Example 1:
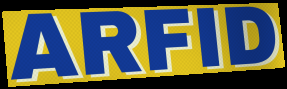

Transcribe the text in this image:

ARFID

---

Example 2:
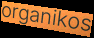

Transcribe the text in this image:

organikos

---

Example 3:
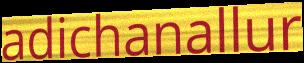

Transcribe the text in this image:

adichanallur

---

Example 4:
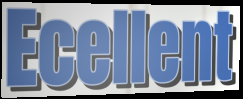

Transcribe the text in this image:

Ecellent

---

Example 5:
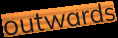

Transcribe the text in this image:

outwards